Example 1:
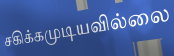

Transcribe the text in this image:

சகிக்கமுடியவில்லை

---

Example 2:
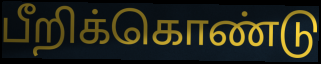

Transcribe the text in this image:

பீறிக்கொண்டு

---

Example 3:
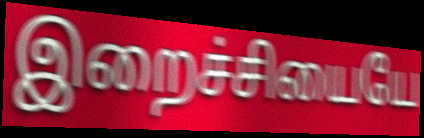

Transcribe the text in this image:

இறைச்சியையே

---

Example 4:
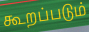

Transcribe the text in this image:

கூறப்படும்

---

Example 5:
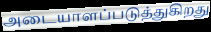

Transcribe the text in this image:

அடையாளப்படுத்துகிறது